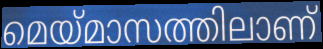
മെയ്മാസത്തിലാണ്